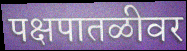
पक्षपातळीवर